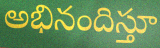
అభినందిస్తూ